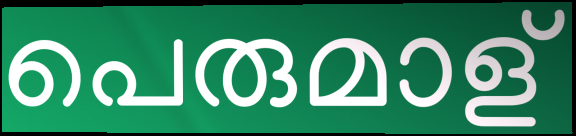
പെരുമാള്